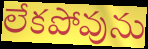
లేకపోవును